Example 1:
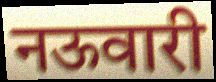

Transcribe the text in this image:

नऊवारी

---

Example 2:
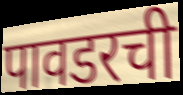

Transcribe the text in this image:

पावडरची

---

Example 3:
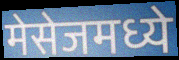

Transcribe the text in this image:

मेसेजमध्ये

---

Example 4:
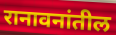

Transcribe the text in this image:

रानावनांतील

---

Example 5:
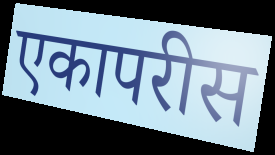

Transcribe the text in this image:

एकापरीस